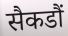
सैकडौं